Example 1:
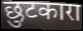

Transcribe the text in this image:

छुटकारा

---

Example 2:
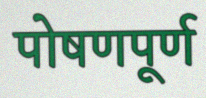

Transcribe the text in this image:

पोषणपूर्ण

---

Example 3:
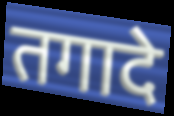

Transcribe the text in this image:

तगादे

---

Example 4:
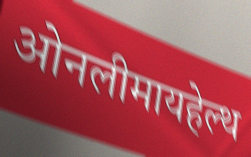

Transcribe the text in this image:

ओनलीमायहेल्थ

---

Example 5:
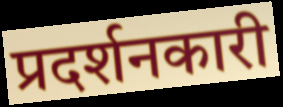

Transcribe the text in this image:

प्रदर्शनकारी